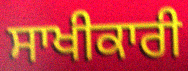
ਸਾਖੀਕਾਰੀ